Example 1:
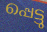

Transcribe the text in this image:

പ്പെട്ടു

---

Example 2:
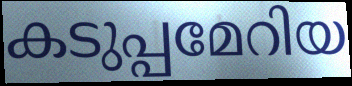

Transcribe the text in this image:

കടുപ്പമേറിയ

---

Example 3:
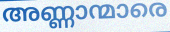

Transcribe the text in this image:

അണ്ണാന്മാരെ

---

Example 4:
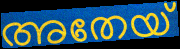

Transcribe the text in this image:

അതേയ്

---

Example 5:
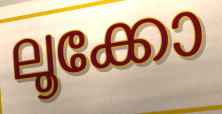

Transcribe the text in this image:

ലൂക്കോ